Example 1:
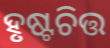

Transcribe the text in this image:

ହୃଷ୍ଟଚିତ୍ତ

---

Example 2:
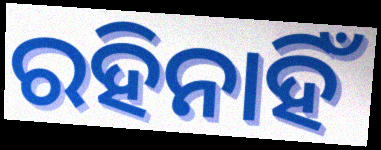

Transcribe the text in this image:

ରହିନାହିଁ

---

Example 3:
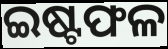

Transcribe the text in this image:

ଇଷ୍ଟଫଳ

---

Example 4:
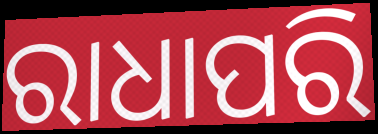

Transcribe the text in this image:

ରାଧାପରି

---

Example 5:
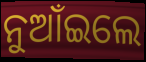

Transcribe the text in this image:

ନୁଆଁଇଲେ